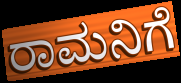
ರಾಮನಿಗೆ